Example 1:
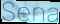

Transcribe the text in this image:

Sena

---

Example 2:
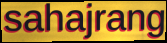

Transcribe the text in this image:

sahajrang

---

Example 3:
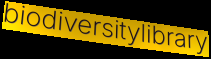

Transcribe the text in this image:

biodiversitylibrary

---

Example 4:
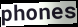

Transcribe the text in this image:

phones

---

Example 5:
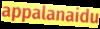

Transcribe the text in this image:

appalanaidu